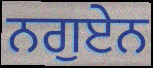
ਨਗੁਏਨ